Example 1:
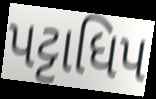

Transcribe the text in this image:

પટ્ટાધિપ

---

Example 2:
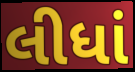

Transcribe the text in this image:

લીધાં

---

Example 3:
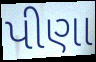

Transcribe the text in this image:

પીણા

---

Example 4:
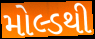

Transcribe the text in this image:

મોલ્ડથી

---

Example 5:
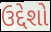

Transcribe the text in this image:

ઉદ્દેશો